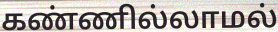
கண்ணில்லாமல்